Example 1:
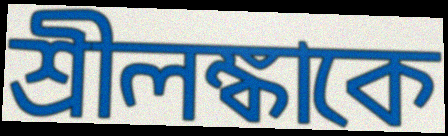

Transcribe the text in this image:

শ্রীলঙ্কাকে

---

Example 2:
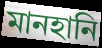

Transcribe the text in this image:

মানহানি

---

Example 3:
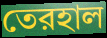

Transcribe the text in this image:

তেরহাল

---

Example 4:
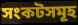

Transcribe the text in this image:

সংকটসমূহ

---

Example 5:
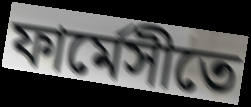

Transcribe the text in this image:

ফার্মেসীতে